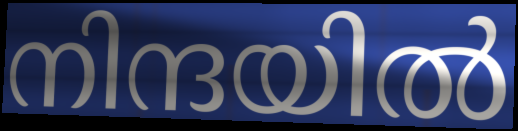
നിന്ദയിൽ